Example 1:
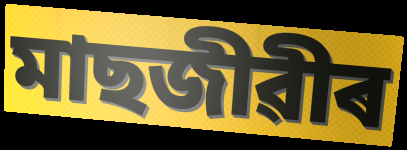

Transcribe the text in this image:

মাছজীৱীৰ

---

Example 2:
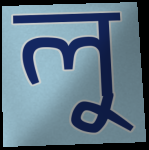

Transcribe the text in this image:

লু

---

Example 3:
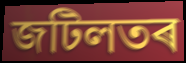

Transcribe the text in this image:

জটিলতৰ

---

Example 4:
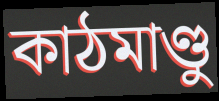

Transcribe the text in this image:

কাঠমাণ্ডু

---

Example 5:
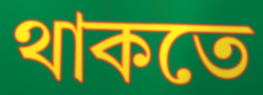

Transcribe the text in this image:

থাকতে